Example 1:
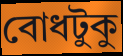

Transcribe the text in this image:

বোধটুকু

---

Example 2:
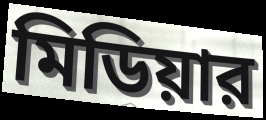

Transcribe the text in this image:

মিডিয়ার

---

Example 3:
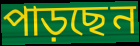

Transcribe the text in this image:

পাড়ছেন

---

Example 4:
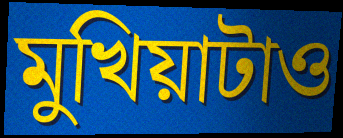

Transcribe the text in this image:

মুখিয়াটাও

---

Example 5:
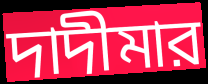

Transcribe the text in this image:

দাদীমার